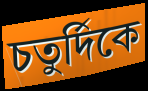
চতুর্দিকে